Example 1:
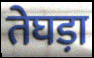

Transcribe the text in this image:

तेघड़ा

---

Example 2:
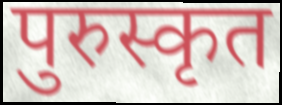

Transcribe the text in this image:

पुरुस्कृत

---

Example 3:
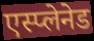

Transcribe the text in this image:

एस्प्लेनेड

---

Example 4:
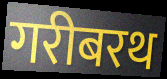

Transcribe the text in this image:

गरीबरथ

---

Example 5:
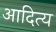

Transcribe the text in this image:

आदित्य